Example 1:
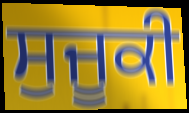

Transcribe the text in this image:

ਸੁਜੂਕੀ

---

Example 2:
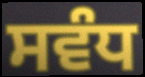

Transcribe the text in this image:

ਸਵੰਧ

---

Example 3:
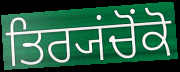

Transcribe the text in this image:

ਤਿਰ੍ਯਂਚੋਂਕੋ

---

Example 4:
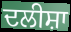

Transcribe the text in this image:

ਦਲੀਸ਼ਾ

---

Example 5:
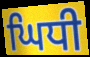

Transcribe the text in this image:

ਘਿਧੀ